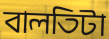
বালতিটা